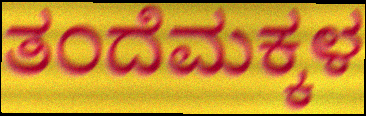
ತಂದೆಮಕ್ಕಳ